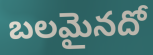
బలమైనదో